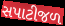
સપાટીજળ